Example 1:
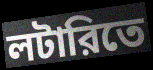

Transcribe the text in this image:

লটারিতে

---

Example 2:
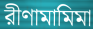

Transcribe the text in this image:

রীণামামিমা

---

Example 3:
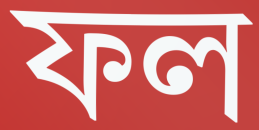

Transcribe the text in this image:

ফল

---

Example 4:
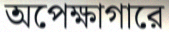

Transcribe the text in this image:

অপেক্ষাগারে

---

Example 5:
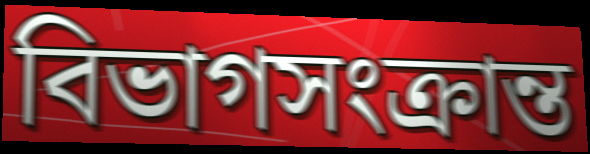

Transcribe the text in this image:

বিভাগসংক্রান্ত